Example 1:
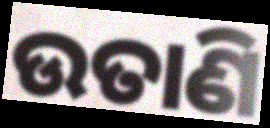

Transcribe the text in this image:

ଉତାଣି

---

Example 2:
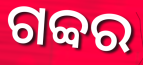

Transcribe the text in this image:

ଗବ୍ବର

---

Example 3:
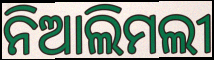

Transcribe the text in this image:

ନିଆଲିମଲୀ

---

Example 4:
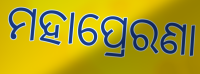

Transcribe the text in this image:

ମହାପ୍ରେରଣା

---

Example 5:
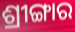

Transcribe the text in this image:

ଶ୍ରୀଙ୍ଗାର